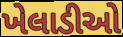
ખેલાડીઓ